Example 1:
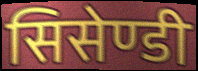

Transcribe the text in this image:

सिसेण्डी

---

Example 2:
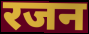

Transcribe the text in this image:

रजन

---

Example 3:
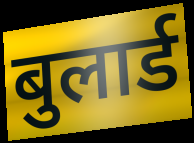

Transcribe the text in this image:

बुलार्ड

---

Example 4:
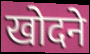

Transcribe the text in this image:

खोदने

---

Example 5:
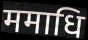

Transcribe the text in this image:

ममाधि